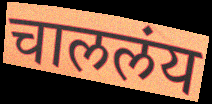
चाललंय